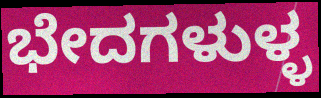
ಭೇದಗಳುಳ್ಳ